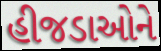
હીજડાઓને